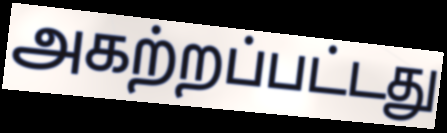
அகற்றப்பட்டது